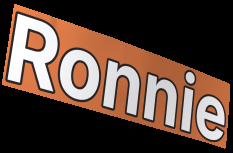
Ronnie